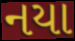
નયા